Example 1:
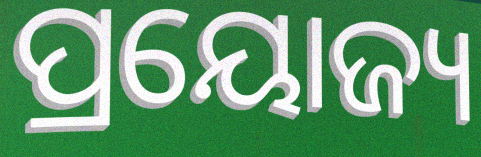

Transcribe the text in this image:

ପ୍ରୟୋଜ୍ୟ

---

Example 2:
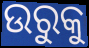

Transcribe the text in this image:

ଉରୁକୁ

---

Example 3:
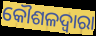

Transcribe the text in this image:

କୌଶଳଦ୍ୱାରା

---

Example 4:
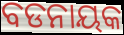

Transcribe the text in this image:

ବଡନାୟକ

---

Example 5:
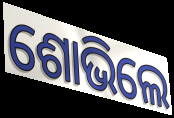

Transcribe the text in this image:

ଶୋଭିଲେ